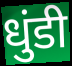
धुंडी